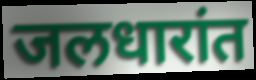
जलधारांत